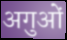
अगुओं